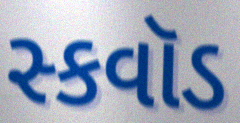
સ્કવૉડ